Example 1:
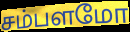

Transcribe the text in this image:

சம்பளமோ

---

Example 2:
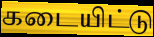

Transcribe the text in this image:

கடையிட்டு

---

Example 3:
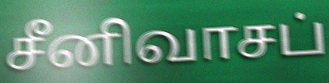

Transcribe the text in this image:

சீனிவாசப்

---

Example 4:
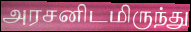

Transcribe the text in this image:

அரசனிடமிருந்து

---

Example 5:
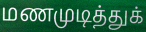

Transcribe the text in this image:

மணமுடித்துக்